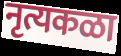
नृत्यकळा